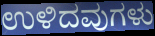
ಉಳಿದವುಗಳು